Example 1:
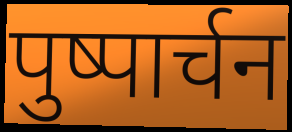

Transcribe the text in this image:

पुष्पार्चन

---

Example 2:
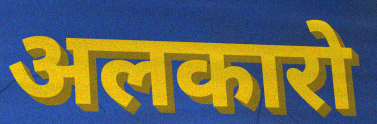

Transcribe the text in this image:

अलकारो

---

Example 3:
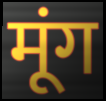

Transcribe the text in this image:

मूंग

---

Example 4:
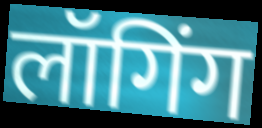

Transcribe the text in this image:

लॉगिंग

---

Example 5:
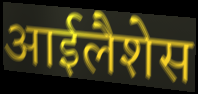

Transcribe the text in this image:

आईलैशेस